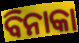
ବିନାକା